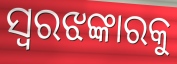
ସ୍ୱରଝଙ୍କାରକୁ